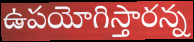
ఉపయోగిస్తారన్న